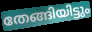
തേങ്ങിയിട്ടും